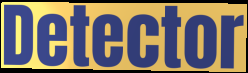
Detector